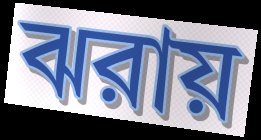
ঝরায়